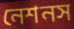
নেশনস